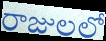
రాజులలో